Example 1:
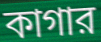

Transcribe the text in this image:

কাগার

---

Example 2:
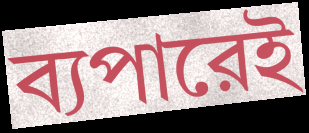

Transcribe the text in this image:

ব্যপারেই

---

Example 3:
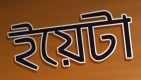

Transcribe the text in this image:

ইয়েটা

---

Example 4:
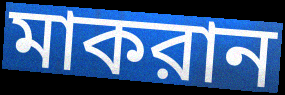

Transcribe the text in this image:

মাকরান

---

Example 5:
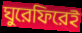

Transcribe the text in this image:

ঘুরেফিরেই